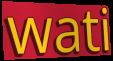
wati